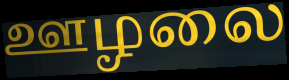
ஊழலை